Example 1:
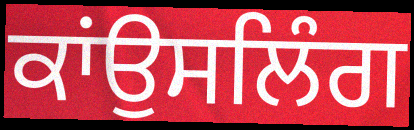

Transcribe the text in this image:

ਕਾਂਉਸਲਿੰਗ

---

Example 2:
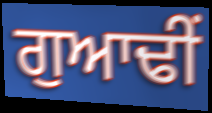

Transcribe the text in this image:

ਗੁਆਢੀਂ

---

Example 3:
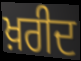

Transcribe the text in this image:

ਖ਼ਰੀਦ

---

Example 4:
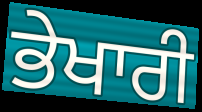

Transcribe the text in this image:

ਭੇਖਾਰੀ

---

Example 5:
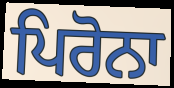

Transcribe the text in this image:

ਪਿਰੋਨਾ